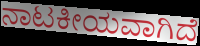
ನಾಟಕೀಯವಾಗಿದೆ